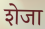
शेजा